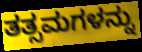
ತತ್ಸಮಗಳನ್ನು